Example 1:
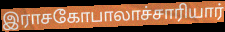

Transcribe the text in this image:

இராசகோபாலாச்சாரியார்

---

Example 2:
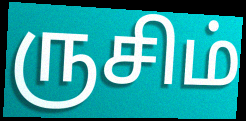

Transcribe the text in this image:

ருசிம்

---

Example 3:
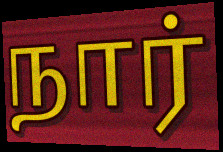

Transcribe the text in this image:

நார்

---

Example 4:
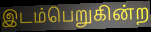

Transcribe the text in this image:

இடம்பெறுகின்ற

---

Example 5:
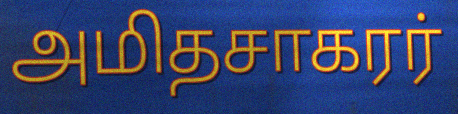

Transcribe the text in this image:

அமிதசாகரர்